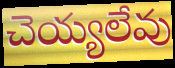
చెయ్యలేవు